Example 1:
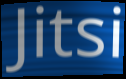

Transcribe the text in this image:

Jitsi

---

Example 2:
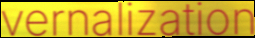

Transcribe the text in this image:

vernalization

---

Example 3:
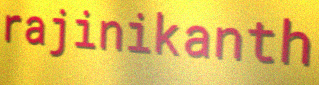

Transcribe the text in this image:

rajinikanth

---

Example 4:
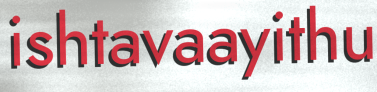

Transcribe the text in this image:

ishtavaayithu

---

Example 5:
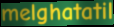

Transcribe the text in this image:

melghatatil